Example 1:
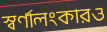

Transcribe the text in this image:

স্বর্ণালংকারও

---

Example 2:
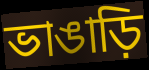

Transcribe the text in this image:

ভাঙাড়ি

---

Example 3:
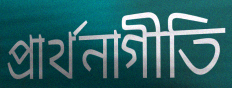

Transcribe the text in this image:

প্রার্থনাগীতি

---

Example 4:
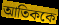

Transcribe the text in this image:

আতিককে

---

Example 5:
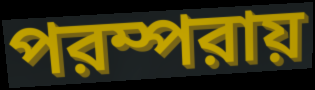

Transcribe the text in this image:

পরম্পরায়